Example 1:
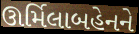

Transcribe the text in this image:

ઊર્મિલાબહેનને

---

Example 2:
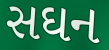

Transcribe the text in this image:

સઘન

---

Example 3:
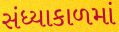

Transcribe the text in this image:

સંધ્યાકાળમાં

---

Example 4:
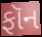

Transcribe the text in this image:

ફૉન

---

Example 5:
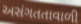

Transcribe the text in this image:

અસંગતતાવાળી